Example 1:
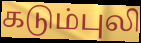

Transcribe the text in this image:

கடும்புலி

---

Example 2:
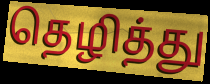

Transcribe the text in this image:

தெழித்து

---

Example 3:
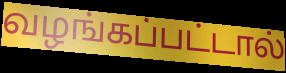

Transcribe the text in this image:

வழங்கப்பட்டால்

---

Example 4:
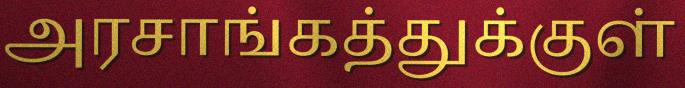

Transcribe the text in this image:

அரசாங்கத்துக்குள்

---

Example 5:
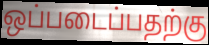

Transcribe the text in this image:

ஒப்படைப்பதற்கு